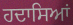
ਹਦਾਸਿਆਂ